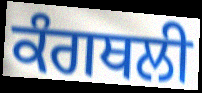
ਕੰਗਥਲੀ